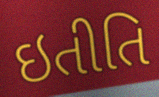
ઇતીતિ